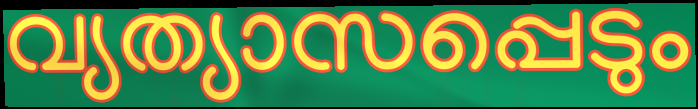
വ്യത്യാസപ്പെടും